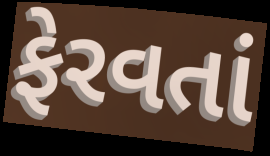
ફેરવતાં